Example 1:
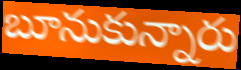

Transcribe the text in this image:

బూనుకున్నారు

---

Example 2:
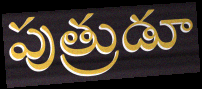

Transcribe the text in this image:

పుత్రుడూ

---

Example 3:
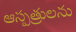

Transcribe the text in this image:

ఆస్పత్రులను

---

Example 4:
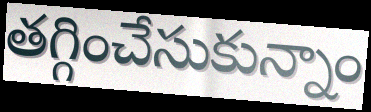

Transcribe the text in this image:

తగ్గించేసుకున్నాం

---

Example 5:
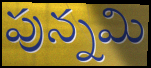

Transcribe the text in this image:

పున్నమి